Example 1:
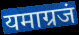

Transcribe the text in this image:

यमाग्रजं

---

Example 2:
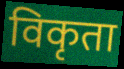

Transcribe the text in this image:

विकृता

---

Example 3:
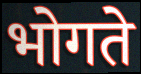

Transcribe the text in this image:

भोगते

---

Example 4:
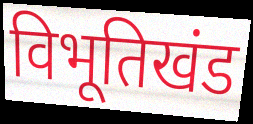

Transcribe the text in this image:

विभूतिखंड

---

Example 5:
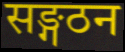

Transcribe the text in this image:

सङ्गठन